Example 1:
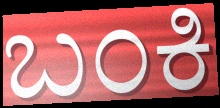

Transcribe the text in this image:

ಬಂಕಿ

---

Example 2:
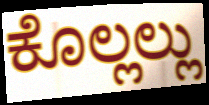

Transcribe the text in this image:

ಕೊಲ್ಲಲ್ಲು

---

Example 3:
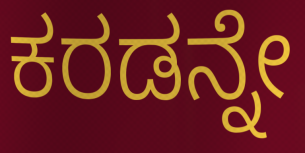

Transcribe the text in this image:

ಕರಡನ್ನೇ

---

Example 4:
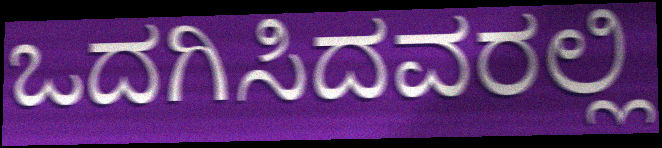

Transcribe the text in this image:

ಒದಗಿಸಿದವರಲ್ಲಿ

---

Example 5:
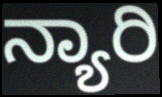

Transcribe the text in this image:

ನ್ಯಾರಿ